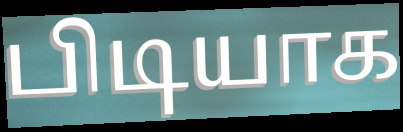
பிடியாக